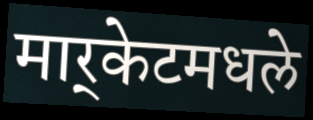
मार्केटमधले